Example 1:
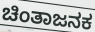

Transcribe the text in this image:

ಚಿಂತಾಜನಕ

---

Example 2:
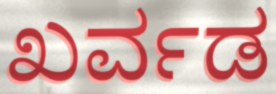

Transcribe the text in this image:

ಖರ್ವಡ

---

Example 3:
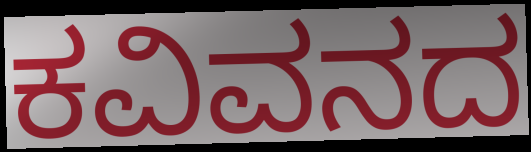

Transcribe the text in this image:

ಕವಿವನದ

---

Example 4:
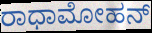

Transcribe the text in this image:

ರಾಧಾಮೋಹನ್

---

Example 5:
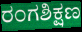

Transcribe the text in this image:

ರಂಗಶಿಕ್ಷಣ